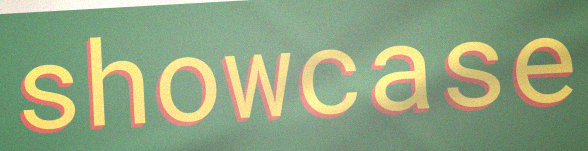
showcase